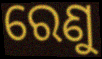
ରେଣୁ